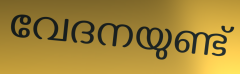
വേദനയുണ്ട്